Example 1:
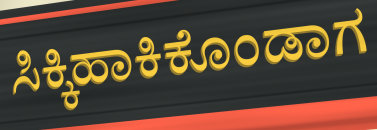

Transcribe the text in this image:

ಸಿಕ್ಕಿಹಾಕಿಕೊಂಡಾಗ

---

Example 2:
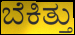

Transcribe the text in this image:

ಬೆಕಿತ್ತು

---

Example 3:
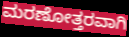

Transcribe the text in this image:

ಮರಣೋತ್ತರವಾಗಿ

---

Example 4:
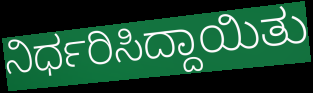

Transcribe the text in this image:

ನಿರ್ಧರಿಸಿದ್ದಾಯಿತು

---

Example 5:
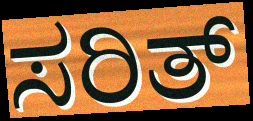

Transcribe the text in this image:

ಸರಿತ್